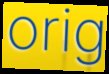
orig